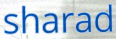
sharad